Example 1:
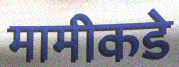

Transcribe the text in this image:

मामीकडे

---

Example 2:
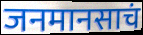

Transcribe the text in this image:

जनमानसाचं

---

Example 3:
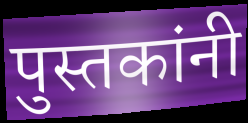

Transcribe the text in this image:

पुस्तकांनी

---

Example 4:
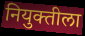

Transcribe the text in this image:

नियुक्तीला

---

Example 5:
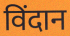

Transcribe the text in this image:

विंदान